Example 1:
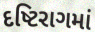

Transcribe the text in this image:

દષ્ટિરાગમાં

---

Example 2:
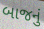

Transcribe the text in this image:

બાજનું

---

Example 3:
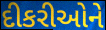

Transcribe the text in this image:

દીકરીઓને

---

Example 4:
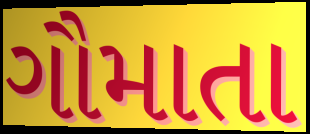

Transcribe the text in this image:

ગૌમાતા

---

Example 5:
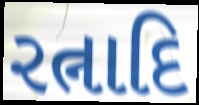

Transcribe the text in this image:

રત્નાદિ